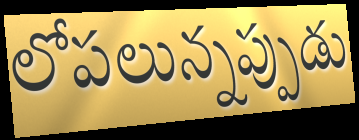
లోపలున్నప్పుడు